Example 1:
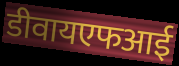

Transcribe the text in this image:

डीवायएफआई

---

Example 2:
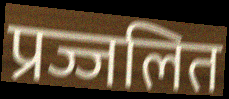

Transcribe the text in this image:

प्रज्जलित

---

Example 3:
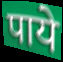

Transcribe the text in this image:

पाये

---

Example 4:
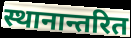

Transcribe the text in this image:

स्थानान्तरित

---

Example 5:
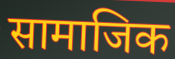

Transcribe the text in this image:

सामाजिक